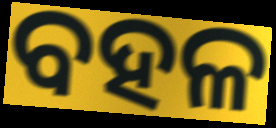
ବହଳ